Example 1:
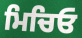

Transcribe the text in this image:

ਮਿਚਿਓ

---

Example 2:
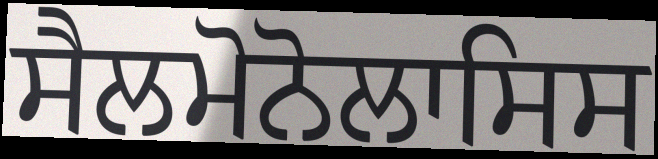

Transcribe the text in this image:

ਸੈਲਮੋਨੋਲਾਸਿਸ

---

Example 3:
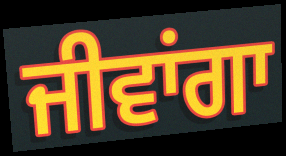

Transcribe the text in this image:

ਜੀਵਾਂਗਾ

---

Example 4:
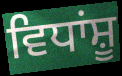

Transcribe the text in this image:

ਵਿਧਾਂਸ਼ੂ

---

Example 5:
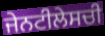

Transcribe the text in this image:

ਜੇਨਟੀਲੇਸਚੀ